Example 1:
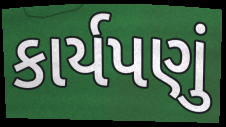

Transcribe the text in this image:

કાર્યપણું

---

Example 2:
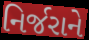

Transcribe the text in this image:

નિર્જરાને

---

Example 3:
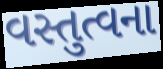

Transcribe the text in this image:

વસ્તુત્વના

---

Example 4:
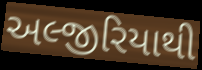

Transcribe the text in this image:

અલ્જીરિયાથી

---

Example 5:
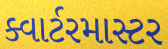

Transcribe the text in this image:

ક્વાર્ટરમાસ્ટર